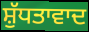
ਸ਼ੁੱਧਤਾਵਾਦ